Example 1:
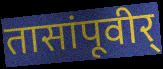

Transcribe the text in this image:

तासांपूवीर्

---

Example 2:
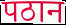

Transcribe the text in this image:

पठान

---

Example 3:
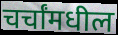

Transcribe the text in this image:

चर्चांमधील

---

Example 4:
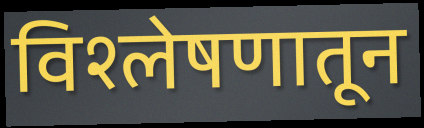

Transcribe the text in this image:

विश्लेषणातून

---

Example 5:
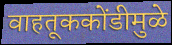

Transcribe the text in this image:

वाहतूककोंडीमुळे